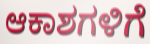
ಆಕಾಶಗಳಿಗೆ